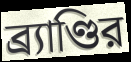
ব্র্যাণ্ডির